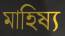
মাহিষ্য